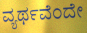
ವ್ಯರ್ಥವೆಂದೇ